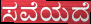
ಸವೆಯದೆ